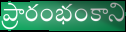
ప్రారంభంకాని